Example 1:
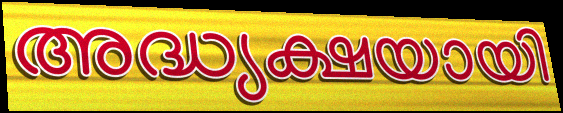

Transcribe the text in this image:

അദ്ധ്യക്ഷയായി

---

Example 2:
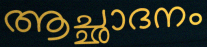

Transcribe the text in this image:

ആച്ഛാദനം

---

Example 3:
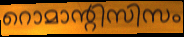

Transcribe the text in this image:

റൊമാന്റിസിസം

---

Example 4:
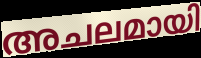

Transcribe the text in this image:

അചലമായി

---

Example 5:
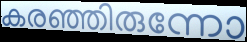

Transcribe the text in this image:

കരഞ്ഞിരുന്നോ